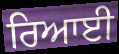
ਰਿਆਈ